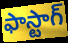
ఫాస్టాగ్